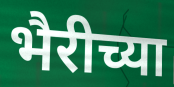
भैरीच्या